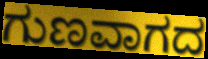
ಗುಣವಾಗದ